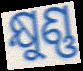
କ୍ଷୁଣ୍ଣ